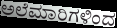
ಅಲೆಮಾರಿಗಳಿಂದ